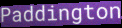
Paddington